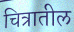
चित्रातील